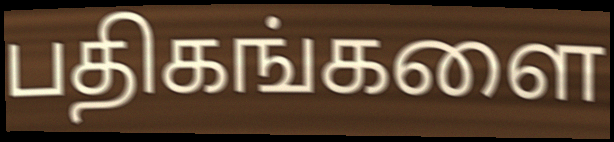
பதிகங்களை